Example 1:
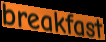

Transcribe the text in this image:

breakfast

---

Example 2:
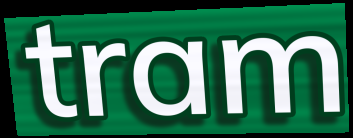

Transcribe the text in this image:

tram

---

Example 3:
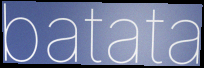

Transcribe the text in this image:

batata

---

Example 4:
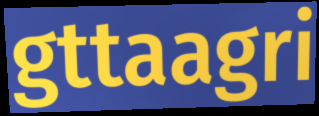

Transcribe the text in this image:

gttaagri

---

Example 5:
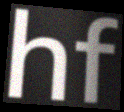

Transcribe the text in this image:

hf